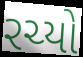
રચ્યો